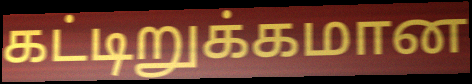
கட்டிறுக்கமான